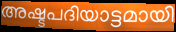
അഷ്ടപദിയാട്ടമായി